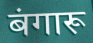
बंगारू